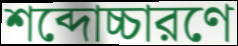
শব্দোচ্চারণে